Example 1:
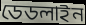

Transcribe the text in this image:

ডেডলাইন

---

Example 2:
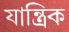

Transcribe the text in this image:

যান্ত্রিক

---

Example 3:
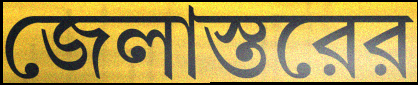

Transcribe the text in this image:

জেলাস্তরের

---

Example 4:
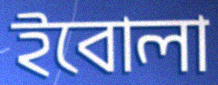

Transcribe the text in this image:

ইবোলা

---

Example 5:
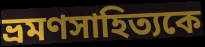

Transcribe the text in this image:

ভ্রমণসাহিত্যকে